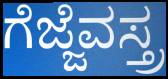
ಗೆಜ್ಜೆವಸ್ತ್ರ